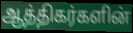
ஆத்திகர்களின்